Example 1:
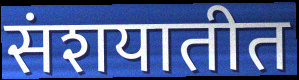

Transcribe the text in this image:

संशयातीत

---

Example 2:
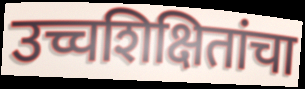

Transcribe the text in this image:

उच्चशिक्षितांचा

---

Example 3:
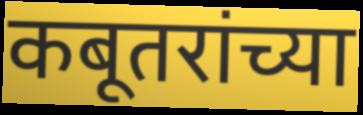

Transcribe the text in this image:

कबूतरांच्या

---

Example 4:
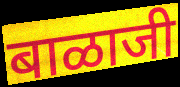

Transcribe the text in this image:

बाळाजी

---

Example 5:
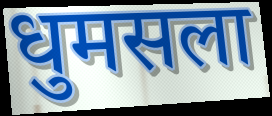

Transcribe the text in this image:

धुमसला